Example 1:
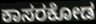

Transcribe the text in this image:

ಕಾಸರಕೋಡ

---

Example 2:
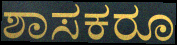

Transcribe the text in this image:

ಶಾಸಕರೂ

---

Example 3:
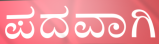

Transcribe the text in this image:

ಪದವಾಗಿ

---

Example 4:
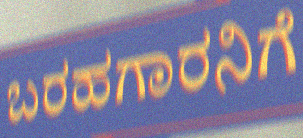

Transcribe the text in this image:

ಬರಹಗಾರನಿಗೆ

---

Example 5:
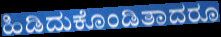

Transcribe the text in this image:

ಹಿಡಿದುಕೊಂಡಿತಾದರೂ